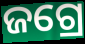
ଜଗ୍ରେ